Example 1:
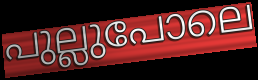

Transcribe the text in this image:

പുല്ലുപോലെ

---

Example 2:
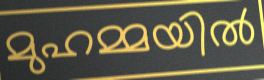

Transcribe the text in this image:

മുഹമ്മയിൽ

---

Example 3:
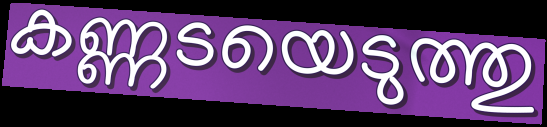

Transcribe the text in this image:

കണ്ണടയെടുത്തു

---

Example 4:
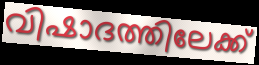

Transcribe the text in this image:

വിഷാദത്തിലേക്ക്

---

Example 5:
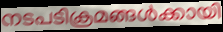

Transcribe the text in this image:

നടപടിക്രമങ്ങൾക്കായി